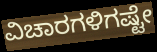
ವಿಚಾರಗಳಿಗಷ್ಟೇ